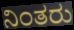
ನಿಂತರು